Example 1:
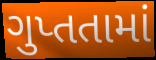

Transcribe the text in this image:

ગુપ્તતામાં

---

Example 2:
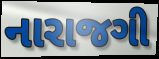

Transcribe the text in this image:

નારાજગી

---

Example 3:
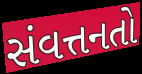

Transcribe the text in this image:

સંવત્તનતો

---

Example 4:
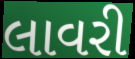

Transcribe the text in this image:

લાવરી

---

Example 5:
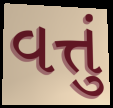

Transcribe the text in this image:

વત્તું